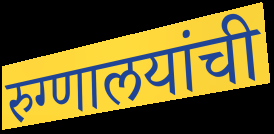
रुग्णालयांची